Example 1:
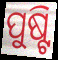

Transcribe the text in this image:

ପୁଷ୍ଟି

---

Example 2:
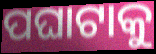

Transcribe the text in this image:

ପଘାଟାକୁ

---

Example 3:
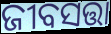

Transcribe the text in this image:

ଜୀବସତ୍ତା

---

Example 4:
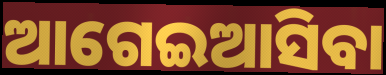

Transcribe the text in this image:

ଆଗେଇଆସିବା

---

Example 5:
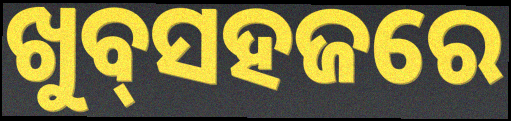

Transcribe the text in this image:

ଖୁବ୍‌ସହଜରେ